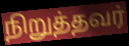
நிறுத்தவர்